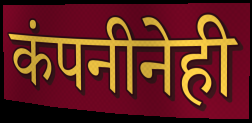
कंपनीनेही